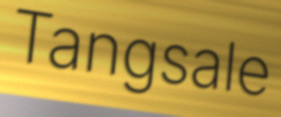
Tangsale